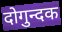
दोगुन्दक